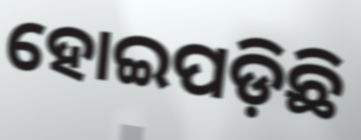
ହୋଇପଡ଼ିଛି